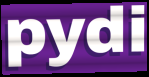
pydi